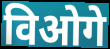
विओगे